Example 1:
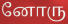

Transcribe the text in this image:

னோரு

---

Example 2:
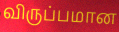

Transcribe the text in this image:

விருப்பமான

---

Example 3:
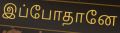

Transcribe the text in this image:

இப்போதானே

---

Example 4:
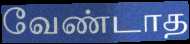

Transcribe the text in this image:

வேண்டாத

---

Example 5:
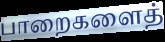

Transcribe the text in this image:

பாறைகளைத்